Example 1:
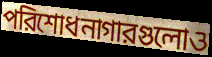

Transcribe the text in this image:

পরিশোধনাগারগুলোও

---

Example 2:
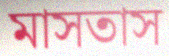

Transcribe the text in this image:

মাসতাস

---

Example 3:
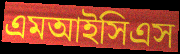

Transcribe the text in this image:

এমআইসিএস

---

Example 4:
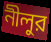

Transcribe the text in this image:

নীলুর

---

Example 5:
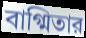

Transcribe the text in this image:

বাগ্মিতার